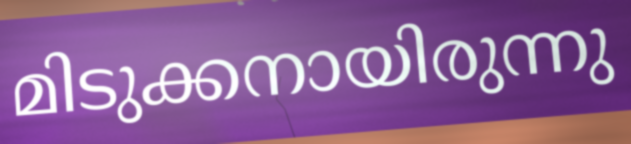
മിടുക്കനായിരുന്നു